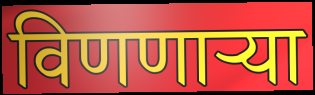
विणणाऱ्या